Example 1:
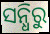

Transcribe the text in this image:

ସନ୍ଧିରୁ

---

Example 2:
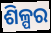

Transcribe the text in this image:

ଶିଳ୍ପର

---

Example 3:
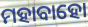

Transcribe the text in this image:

ମହାବାହୋ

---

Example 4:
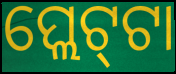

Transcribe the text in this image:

ପ୍ଲେଟ୍‍ଟା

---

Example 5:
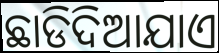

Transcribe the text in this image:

ଛାଡିଦିଆଯାଏ